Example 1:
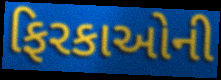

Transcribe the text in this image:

ફિરકાઓની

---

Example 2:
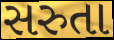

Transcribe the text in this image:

સરુતા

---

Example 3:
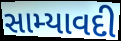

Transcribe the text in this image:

સામ્યાવદી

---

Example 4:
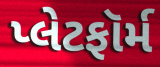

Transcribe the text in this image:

પ્લેટફૉર્મ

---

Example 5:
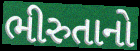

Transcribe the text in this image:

ભીરુતાનો